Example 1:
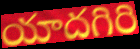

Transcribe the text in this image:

యాదగిరి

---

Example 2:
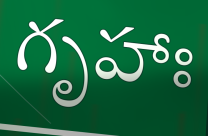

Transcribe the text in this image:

గృహాః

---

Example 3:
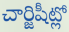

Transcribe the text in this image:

చార్జిషీట్లో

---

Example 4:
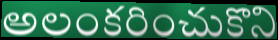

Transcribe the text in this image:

అలంకరించుకొని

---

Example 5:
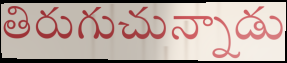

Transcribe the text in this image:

తిరుగుచున్నాడు